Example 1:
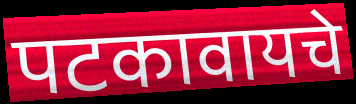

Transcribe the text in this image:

पटकावायचे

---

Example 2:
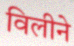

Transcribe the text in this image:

विलीने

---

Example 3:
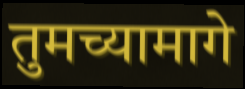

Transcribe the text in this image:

तुमच्यामागे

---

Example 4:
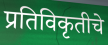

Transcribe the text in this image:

प्रतिविकृतीचे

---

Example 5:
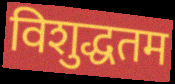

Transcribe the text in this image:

विशुद्धतम